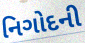
નિગોદની